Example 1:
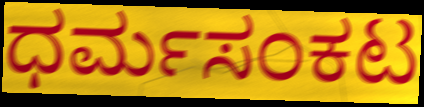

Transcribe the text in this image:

ಧರ್ಮಸಂಕಟ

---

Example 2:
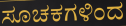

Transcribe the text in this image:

ಸೂಚಕಗಳಿಂದ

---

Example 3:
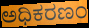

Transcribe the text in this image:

ಅಧಿಕರಣಂ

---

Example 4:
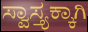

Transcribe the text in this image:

ಸ್ವಾಸ್ತ್ಯಕ್ಕಾಗಿ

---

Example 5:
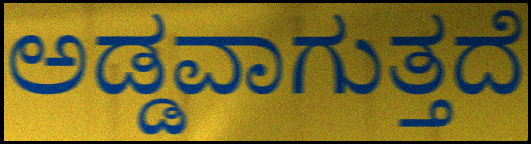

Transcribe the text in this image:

ಅಡ್ಡವಾಗುತ್ತದೆ